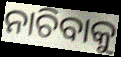
ନାଚିବାକୁ